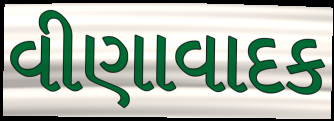
વીણાવાદક